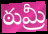
ఠుమ్రీ